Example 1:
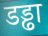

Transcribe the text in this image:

डड्ढा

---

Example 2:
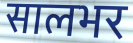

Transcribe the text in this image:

सालभर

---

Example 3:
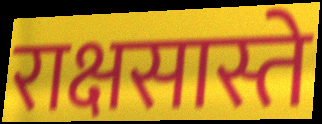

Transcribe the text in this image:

राक्षसास्ते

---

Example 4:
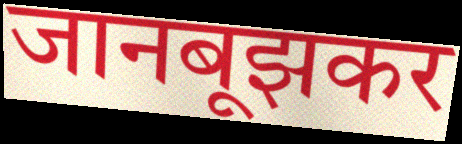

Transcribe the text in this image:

जानबूझकर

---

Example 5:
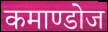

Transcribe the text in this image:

कमाण्डोज